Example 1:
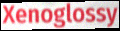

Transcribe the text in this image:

Xenoglossy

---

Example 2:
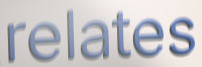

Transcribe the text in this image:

relates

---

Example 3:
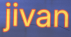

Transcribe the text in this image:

jivan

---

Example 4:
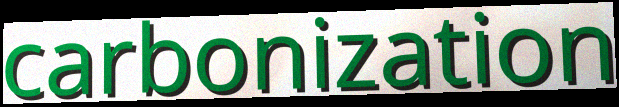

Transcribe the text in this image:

carbonization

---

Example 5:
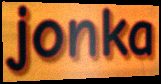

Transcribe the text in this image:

jonka